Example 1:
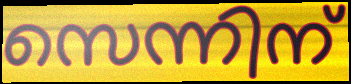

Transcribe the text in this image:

സെന്നിന്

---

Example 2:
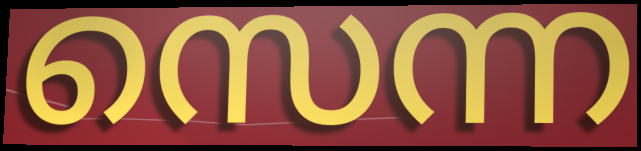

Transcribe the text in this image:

സെന്ന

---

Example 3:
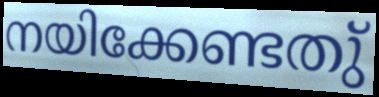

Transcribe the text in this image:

നയിക്കേണ്ടതു്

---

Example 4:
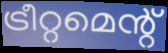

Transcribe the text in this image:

ട്രീറ്റമെന്റ്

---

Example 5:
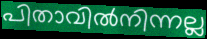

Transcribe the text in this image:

പിതാവിൽനിന്നല്ല